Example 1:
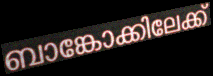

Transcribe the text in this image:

ബാങ്കോക്കിലേക്ക്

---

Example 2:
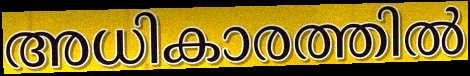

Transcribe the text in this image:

അധികാരത്തിൽ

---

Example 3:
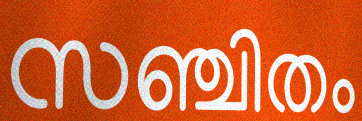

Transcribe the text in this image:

സഞ്ചിതം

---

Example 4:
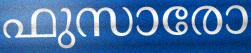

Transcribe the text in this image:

ഫുസാരോ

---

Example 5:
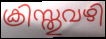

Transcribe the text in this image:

ക്രിസ്തുവഴി